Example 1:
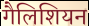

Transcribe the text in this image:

गैलिशियन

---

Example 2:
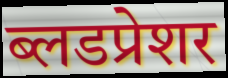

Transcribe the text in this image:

ब्लडप्रेशर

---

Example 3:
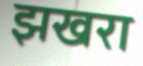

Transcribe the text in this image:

झखरा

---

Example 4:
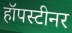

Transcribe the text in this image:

हॉपस्टीनर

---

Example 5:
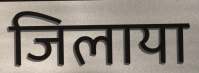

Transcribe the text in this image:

जिलाया